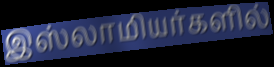
இஸ்லாமியர்களில்